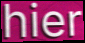
hier